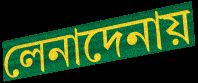
লেনাদেনায়